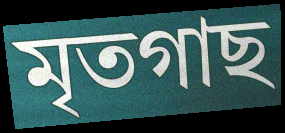
মৃতগাছ